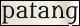
patang